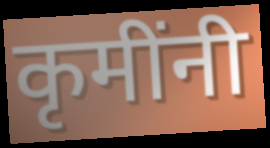
कृमींनी